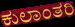
ಕುಲಾಂತರಿ